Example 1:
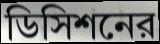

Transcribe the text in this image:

ডিসিশনের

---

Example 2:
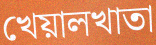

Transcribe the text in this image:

খেয়ালখাতা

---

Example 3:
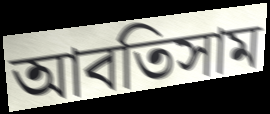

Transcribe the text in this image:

আবতিসাম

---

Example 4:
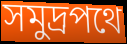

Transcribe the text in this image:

সমুদ্রপথে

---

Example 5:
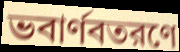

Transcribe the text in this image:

ভবার্ণবতরণে